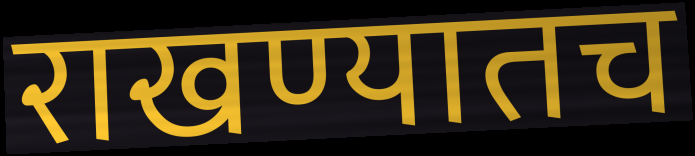
राखण्यातच